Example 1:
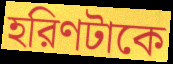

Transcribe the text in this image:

হরিণটাকে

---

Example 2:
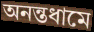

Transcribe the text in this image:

অনন্তধামে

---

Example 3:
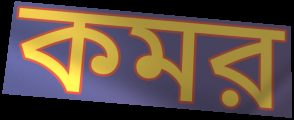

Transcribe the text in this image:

কমর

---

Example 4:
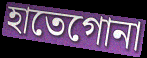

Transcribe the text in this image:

হাতেগোনা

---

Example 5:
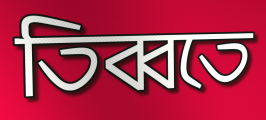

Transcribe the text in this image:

তিব্বতে